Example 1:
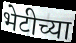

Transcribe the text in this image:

भेटीच्या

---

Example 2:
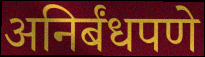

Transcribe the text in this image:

अनिर्बंधपणे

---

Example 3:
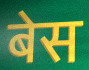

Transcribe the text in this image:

बेस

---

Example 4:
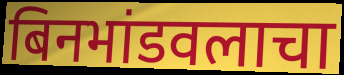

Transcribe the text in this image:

बिनभांडवलाचा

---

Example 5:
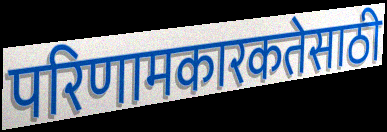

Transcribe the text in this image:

परिणामकारकतेसाठी